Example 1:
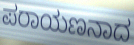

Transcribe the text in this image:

ಪರಾಯಣನಾದ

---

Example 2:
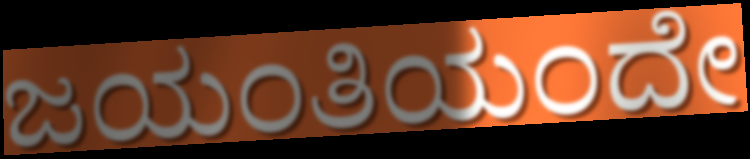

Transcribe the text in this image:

ಜಯಂತಿಯಂದೇ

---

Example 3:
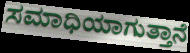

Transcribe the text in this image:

ಸಮಾಧಿಯಾಗುತ್ತಾನೆ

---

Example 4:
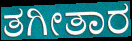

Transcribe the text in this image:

ತಗೀತಾರ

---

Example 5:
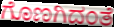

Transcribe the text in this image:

ಗೊಣಗಿದಂತೆ